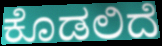
ಕೊಡಲಿದೆ